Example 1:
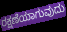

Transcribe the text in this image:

ರಕ್ಷಣೆಯಾಗುವುದು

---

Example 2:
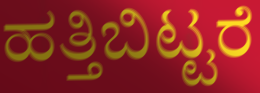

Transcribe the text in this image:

ಹತ್ತಿಬಿಟ್ಟರೆ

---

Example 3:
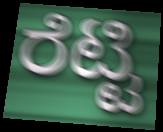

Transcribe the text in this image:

ರೆಟ್ಟಿ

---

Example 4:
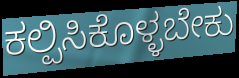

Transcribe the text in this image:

ಕಲ್ಪಿಸಿಕೊಳ್ಳಬೇಕು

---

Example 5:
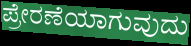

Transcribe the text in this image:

ಪ್ರೇರಣೆಯಾಗುವುದು